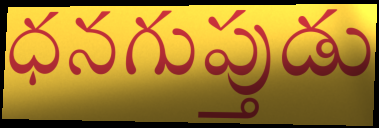
ధనగుప్తుడు